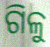
ଗିଳୁ